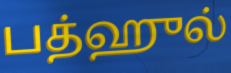
பத்ஹுல்